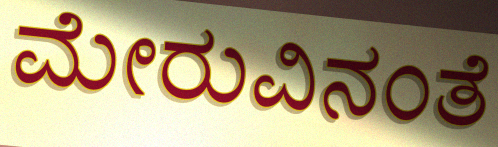
ಮೇರುವಿನಂತೆ